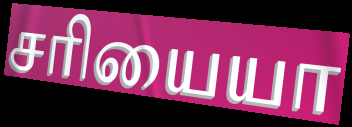
சரியையா